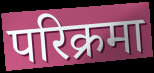
परिक्रमा